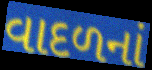
વાદળનાં